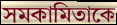
সমকামিতাকে